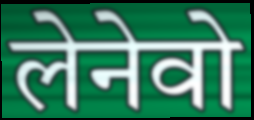
लेनेवो